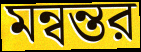
মন্বন্তর